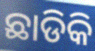
ଛାଡିକି